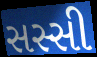
સસ્સી